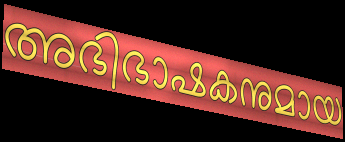
അഭിഭാഷകനുമായ